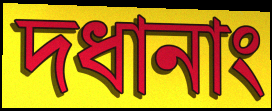
দধানাং